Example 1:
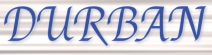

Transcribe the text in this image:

DURBAN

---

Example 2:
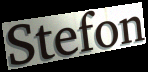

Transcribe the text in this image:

Stefon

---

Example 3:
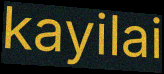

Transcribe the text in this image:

kayilai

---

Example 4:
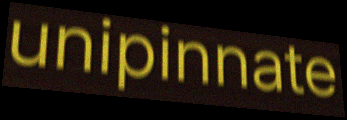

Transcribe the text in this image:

unipinnate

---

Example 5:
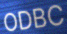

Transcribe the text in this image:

ODBC